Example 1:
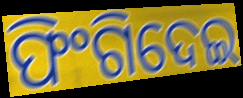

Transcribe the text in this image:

ଫିଂଗିଦେଇ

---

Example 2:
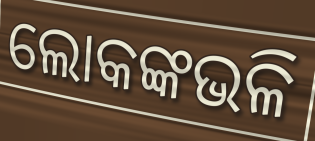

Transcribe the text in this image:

ଲୋକଙ୍କଭଳି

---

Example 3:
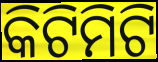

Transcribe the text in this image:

କିଟିମିଟି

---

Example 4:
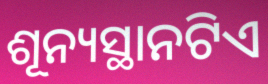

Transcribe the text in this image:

ଶୂନ୍ୟସ୍ଥାନଟିଏ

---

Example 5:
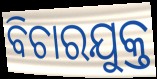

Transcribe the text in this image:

ବିଚାରଯୁକ୍ତ